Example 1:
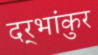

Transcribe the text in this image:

दर्भांकुर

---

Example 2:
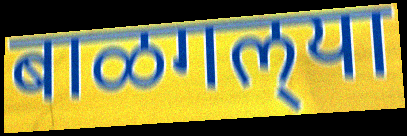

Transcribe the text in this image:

बाळगल्या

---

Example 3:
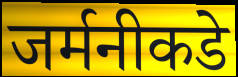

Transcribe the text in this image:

जर्मनीकडे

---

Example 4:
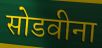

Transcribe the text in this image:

सोडवीना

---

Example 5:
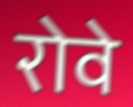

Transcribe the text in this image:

रोवे